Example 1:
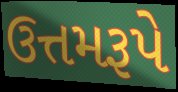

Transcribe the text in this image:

ઉત્તમરૂપે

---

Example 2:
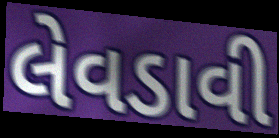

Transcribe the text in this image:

લેવડાવી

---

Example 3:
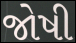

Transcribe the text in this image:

જોષી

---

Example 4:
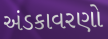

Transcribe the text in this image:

અંડકાવરણો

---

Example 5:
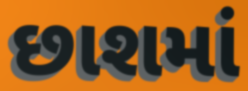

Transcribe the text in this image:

છાશમાં